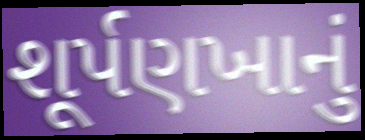
શૂર્પણખાનું